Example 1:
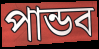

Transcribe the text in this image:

পান্ডব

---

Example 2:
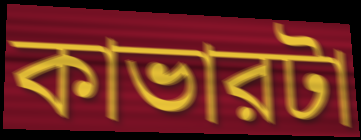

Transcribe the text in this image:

কাভারটা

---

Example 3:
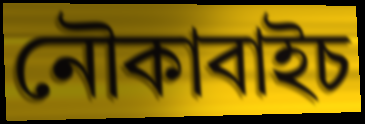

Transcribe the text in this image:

নৌকাবাইচ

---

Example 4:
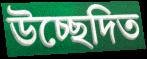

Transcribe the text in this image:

উচ্ছেদিত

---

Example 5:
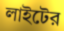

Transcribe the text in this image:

লাইটের